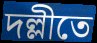
দল্লীতে